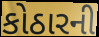
કોઠારની